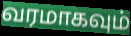
வரமாகவும்